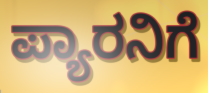
ಪ್ಯಾರನಿಗೆ